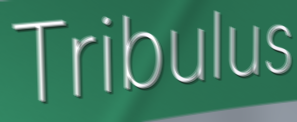
Tribulus